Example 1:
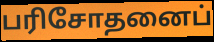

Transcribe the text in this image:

பரிசோதனைப்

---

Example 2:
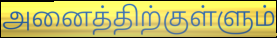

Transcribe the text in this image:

அனைத்திற்குள்ளும்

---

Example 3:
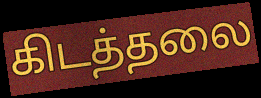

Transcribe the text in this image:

கிடத்தலை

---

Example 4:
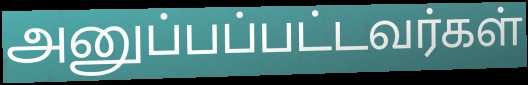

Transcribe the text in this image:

அனுப்பப்பட்டவர்கள்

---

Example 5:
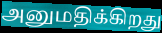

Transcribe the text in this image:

அனுமதிக்கிறது